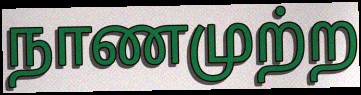
நாணமுற்ற